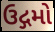
ઉદ્ગમો